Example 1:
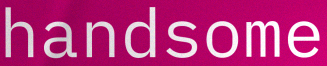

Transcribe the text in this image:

handsome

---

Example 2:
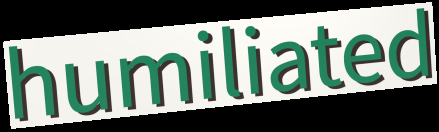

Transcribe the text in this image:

humiliated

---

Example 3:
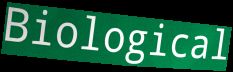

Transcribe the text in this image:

Biological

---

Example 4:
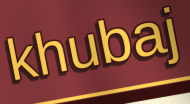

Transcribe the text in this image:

khubaj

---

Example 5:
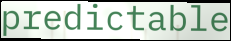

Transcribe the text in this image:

predictable